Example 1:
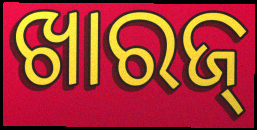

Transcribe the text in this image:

ଖାରଜ୍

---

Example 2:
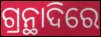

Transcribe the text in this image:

ଗ୍ରନ୍ଥାଦିରେ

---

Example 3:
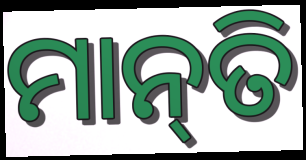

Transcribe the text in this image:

ମାନ୍‌ତି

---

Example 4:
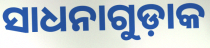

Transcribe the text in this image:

ସାଧନାଗୁଡ଼ାକ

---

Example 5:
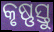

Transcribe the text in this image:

କୃଷ୍ଣସ୍ତୁ